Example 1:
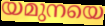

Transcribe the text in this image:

യമുനയെ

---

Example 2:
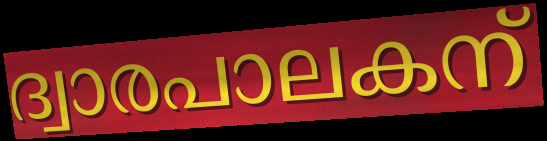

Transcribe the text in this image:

ദ്വാരപാലകന്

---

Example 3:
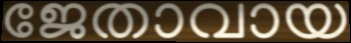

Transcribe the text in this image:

ജേതാവായ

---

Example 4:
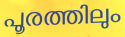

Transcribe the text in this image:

പൂരത്തിലും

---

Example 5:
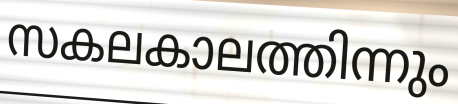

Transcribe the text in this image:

സകലകാലത്തിന്നും